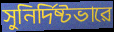
সুনিৰ্দিষ্টভাৱে